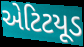
એટિટયૂડ